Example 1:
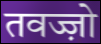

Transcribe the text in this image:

तवज्ज़ो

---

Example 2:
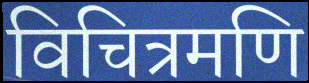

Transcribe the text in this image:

विचित्रमणि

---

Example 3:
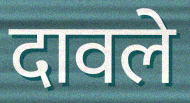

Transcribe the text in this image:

दावले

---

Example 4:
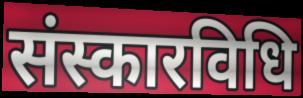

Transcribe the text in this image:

संस्कारविधि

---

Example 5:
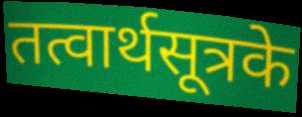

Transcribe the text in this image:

तत्वार्थसूत्रके